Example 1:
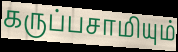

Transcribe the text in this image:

கருப்பசாமியும்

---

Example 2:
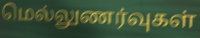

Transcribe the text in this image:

மெல்லுணர்வுகள்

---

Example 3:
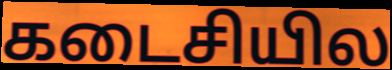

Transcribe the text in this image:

கடைசியில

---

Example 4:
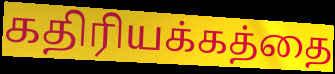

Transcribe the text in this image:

கதிரியக்கத்தை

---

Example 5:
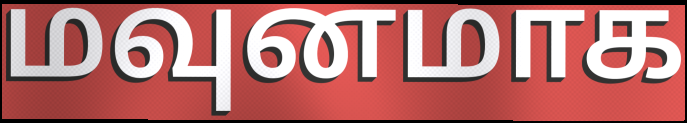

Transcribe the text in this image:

மவுனமாக